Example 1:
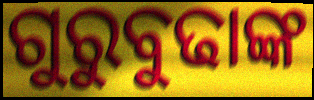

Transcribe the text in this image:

ଗୁରୁବୁଢାଙ୍କ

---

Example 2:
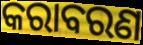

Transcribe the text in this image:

କରାବରଣ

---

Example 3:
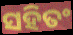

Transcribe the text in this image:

ସହିତଂ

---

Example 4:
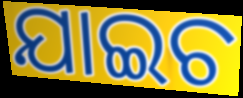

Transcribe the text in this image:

ଯାଇଚ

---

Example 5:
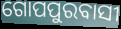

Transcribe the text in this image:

ଗୋପପୁରବାସୀ